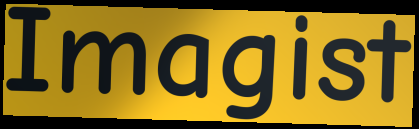
Imagist